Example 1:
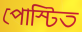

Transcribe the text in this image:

পোস্টিত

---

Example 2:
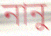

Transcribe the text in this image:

নানু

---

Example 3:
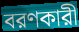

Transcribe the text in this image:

বরণকারী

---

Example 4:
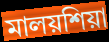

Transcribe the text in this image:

মালয়শিয়া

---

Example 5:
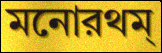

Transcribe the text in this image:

মনোরথম্